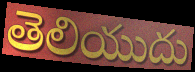
తెలియుదు